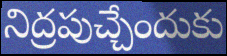
నిద్రపుచ్చేందుకు